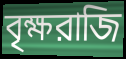
বৃক্ষরাজি